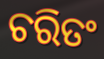
ଚରିତଂ